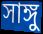
সাঙ্গু